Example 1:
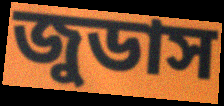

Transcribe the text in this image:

জুডাস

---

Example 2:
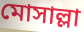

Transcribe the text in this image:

মোসাল্লা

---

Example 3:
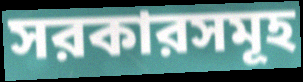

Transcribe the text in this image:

সরকারসমূহ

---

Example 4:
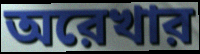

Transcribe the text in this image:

অরেখার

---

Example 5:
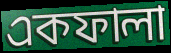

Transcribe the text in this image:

একফালা